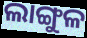
ଲାଙ୍ଗୁଳ